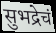
सुभद्रेचं